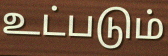
உட்படும்